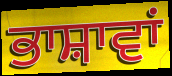
ਭਾਸ਼ਾਵਾਂ